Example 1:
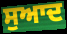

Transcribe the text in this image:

ਸੁਆਦ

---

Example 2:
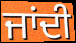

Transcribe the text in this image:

ਜਾਂਦੀ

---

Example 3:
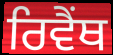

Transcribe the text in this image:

ਰਿਵੈਂਥ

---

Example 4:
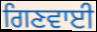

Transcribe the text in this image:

ਗਿਣਵਾਈ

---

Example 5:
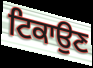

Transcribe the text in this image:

ਟਿਕਾਉਣ